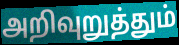
அறிவுறுத்தும்